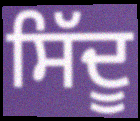
ਸਿੱਦੂ